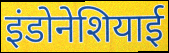
इंडोनेशियाई